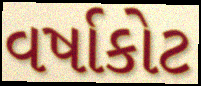
વર્ષાકોટ